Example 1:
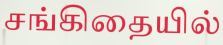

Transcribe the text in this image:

சங்கிதையில்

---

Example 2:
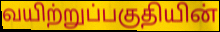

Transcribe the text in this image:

வயிற்றுப்பகுதியின்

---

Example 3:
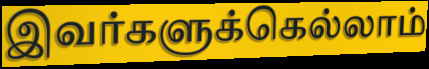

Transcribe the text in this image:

இவர்களுக்கெல்லாம்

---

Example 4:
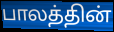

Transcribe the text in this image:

பாலத்தின்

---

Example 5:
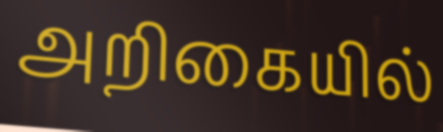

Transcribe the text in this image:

அறிகையில்